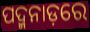
ପଦ୍ମନାଡ଼ରେ